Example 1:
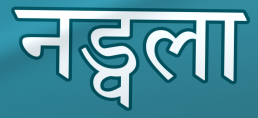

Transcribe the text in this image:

नड्वला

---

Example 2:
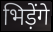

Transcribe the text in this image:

भिड़ेंगे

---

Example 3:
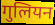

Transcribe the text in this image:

गुलियन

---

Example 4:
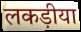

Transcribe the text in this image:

लकड़ीया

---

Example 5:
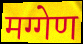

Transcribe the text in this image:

मग्गेण